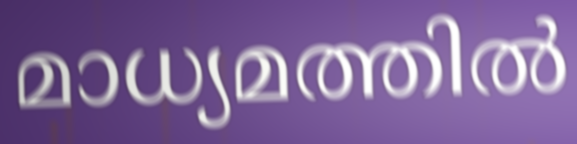
മാധ്യമത്തിൽ